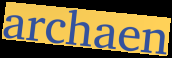
archaen